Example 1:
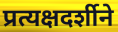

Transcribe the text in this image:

प्रत्यक्षदर्शीने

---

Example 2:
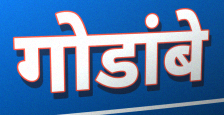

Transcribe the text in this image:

गोडांबे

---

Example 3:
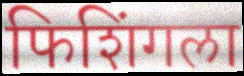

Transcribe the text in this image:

फिशिंगला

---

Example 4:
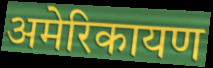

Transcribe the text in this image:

अमेरिकायण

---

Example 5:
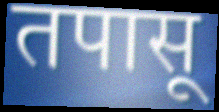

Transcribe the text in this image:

तपासू